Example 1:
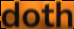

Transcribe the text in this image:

doth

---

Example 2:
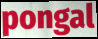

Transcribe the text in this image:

pongal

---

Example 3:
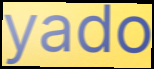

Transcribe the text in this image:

yado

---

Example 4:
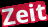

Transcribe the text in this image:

Zeit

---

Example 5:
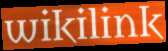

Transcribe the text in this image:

wikilink